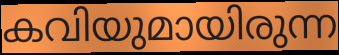
കവിയുമായിരുന്ന